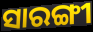
ସାରଙ୍ଗୀ